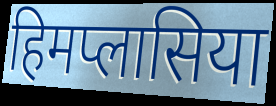
हिमप्लासिया